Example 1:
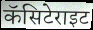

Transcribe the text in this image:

कॅसिटेराइट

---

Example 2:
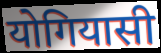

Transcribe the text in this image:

योगियासी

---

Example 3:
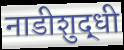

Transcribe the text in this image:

नाडीशुद्धी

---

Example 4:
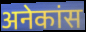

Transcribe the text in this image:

अनेकांस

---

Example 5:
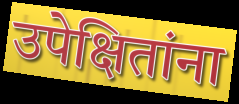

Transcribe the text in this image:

उपेक्षितांना